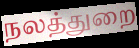
நலத்துறை